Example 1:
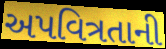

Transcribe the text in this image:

અપવિત્રતાની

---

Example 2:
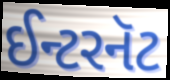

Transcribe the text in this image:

ઈન્ટરનૅટ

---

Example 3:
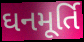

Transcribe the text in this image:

ઘનમૂર્તિ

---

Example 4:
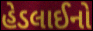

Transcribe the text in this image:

હેડલાઈનો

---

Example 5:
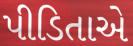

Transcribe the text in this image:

પીડિતાએ